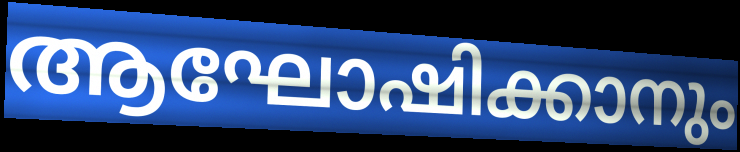
ആഘോഷിക്കാനും